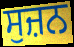
ਸੁਜ਼ਨ